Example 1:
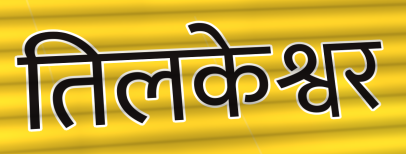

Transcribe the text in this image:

तिलकेश्वर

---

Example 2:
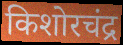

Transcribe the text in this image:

किशोरचंद्र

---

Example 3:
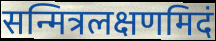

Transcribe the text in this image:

सन्मित्रलक्षणमिदं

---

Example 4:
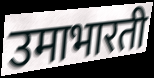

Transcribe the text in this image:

उमाभारती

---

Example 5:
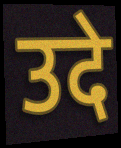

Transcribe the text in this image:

उदे